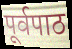
पूर्वपाठ